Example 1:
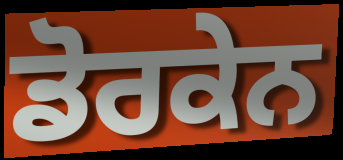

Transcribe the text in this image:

ਡੋਰਕੇਨ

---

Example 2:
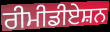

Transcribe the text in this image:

ਰੀਮੀਡੀਏਸ਼ਨ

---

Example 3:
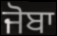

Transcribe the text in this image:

ਜੋਬਾ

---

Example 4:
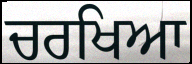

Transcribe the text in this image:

ਚਰਖਿਆ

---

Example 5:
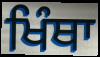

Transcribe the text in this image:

ਖਿੰਥਾ